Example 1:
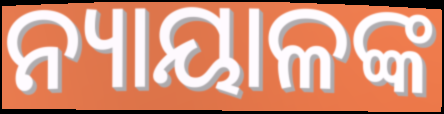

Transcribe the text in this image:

ନ୍ୟାୟାଳଙ୍କ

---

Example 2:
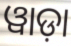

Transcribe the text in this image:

ୱାଡ଼ା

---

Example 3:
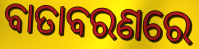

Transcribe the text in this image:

ବାତାବରଣରେ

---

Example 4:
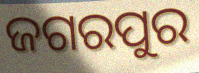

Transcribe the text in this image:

ଜଗରପୁର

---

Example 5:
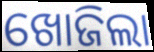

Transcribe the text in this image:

ଖୋଜିଲା